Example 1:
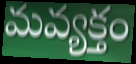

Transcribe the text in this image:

మవ్యక్తం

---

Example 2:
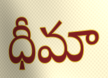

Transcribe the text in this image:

ధీమా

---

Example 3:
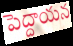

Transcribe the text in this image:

పెద్దాయన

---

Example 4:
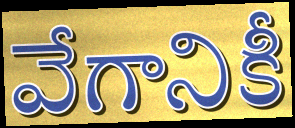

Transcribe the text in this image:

వేగానికీ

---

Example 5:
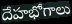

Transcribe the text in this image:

దేహభోగాలు